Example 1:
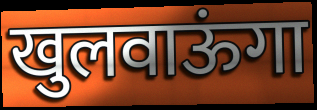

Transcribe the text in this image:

खुलवाऊंगा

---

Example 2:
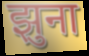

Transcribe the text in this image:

झुना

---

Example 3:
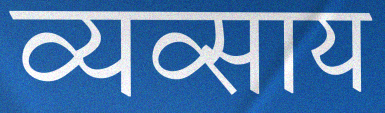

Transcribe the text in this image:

व्यव्साय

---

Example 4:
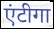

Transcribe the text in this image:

एंटीगा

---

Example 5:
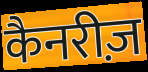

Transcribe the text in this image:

कैनरीज़